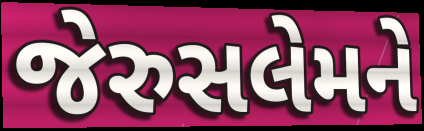
જેરુસલેમને